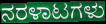
ನರಳಾಟಗಳು